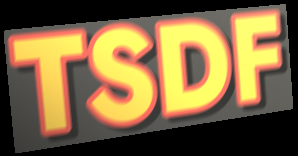
TSDF